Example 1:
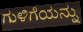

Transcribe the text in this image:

ಗುಳಿಗೆಯನ್ನು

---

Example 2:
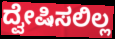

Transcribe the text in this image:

ದ್ವೇಷಿಸಲಿಲ್ಲ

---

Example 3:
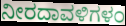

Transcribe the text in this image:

ನೀರದಾವಳಿಗಳಂ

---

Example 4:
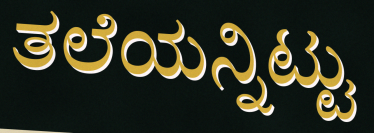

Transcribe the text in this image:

ತಲೆಯನ್ನಿಟ್ಟು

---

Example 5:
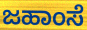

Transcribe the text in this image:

ಜಹಾಂಸೆ